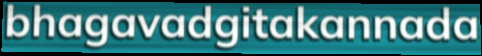
bhagavadgitakannada